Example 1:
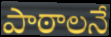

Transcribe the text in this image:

పాఠాలనే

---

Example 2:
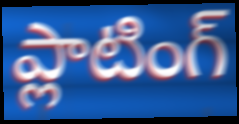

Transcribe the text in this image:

ప్లాటింగ్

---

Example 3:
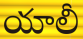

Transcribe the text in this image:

యాలీ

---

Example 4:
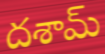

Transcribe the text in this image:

దశామ్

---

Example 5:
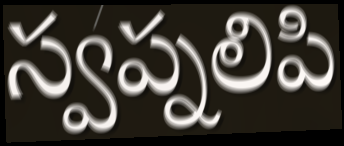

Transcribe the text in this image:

స్వప్నలిపి